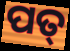
ପତ୍